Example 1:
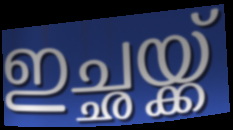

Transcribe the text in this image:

ഇച്ഛയ്ക്ക്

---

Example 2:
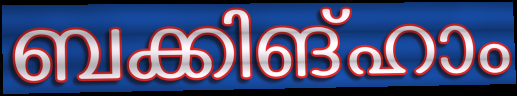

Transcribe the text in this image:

ബക്കിങ്ഹാം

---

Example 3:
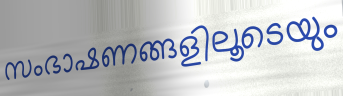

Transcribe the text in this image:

സംഭാഷണങ്ങളിലൂടെയും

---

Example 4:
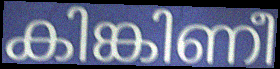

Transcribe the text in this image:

കിങ്കിണീ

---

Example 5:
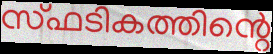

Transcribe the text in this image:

സ്ഫടികത്തിന്റെ